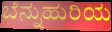
ಬೆನ್ನುಹುರಿಯ